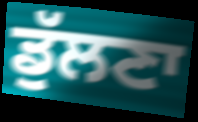
ਡੁੱਲਣਾ